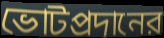
ভোটপ্রদানের